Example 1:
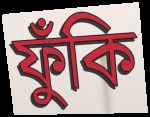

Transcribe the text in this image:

ফুঁকি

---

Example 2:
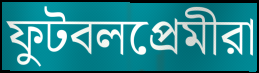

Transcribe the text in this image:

ফুটবলপ্রেমীরা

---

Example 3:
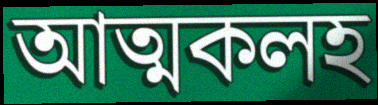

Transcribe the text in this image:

আত্মকলহ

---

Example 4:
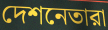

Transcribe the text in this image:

দেশনেতারা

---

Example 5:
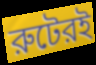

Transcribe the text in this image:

রুটেরই